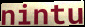
nintu